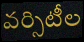
వర్సిటీల